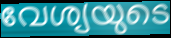
വേശ്യയുടെ